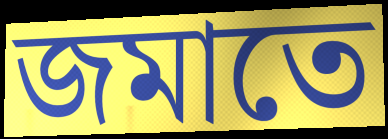
জমাতে